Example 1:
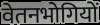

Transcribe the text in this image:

वेतनभोगियों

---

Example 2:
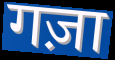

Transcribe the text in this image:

गज़ा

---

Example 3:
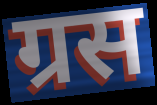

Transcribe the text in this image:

ग्रस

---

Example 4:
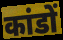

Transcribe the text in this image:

कांडों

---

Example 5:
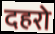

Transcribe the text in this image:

दहरो